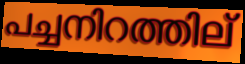
പച്ചനിറത്തില്